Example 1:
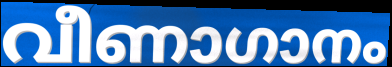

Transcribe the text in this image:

വീണാഗാനം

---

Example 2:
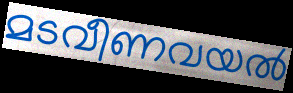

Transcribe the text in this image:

മടവീണവയൽ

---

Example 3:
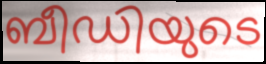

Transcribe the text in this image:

ബീഡിയുടെ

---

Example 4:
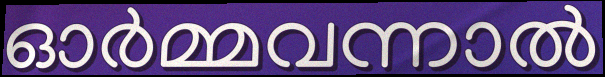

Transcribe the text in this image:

ഓർമ്മവന്നാൽ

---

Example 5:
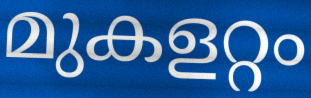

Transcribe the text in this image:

മുകളറ്റം